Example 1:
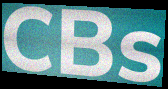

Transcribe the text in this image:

CBs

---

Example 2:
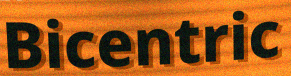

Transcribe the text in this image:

Bicentric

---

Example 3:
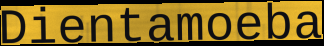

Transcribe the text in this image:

Dientamoeba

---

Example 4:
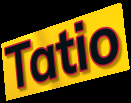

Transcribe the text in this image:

Tatio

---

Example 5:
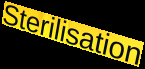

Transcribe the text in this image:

Sterilisation